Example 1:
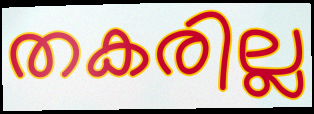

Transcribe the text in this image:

തകരില്ല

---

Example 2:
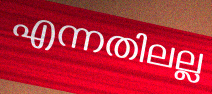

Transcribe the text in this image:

എന്നതിലല്ല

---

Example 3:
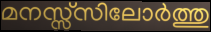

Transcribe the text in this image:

മനസ്സ്സിലോർത്തു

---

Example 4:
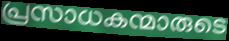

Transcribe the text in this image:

പ്രസാധകന്മാരുടെ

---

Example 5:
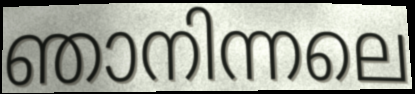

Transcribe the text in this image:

ഞാനിന്നലെ